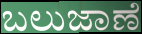
ಬಲುಜಾಣೆ